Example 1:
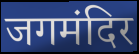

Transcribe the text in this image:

जगमंदिर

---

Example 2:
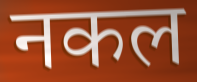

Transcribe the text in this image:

नकल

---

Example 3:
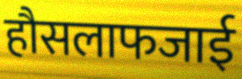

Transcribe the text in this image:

हौसलाफजाई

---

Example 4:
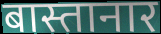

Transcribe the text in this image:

बास्तानार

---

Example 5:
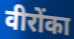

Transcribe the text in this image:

वीरोंका